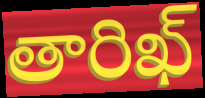
తారిఖ్